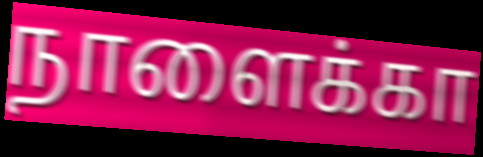
நாளைக்கா